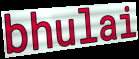
bhulai